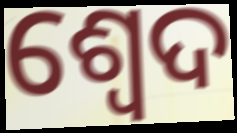
ଶ୍ଵେଦ